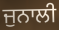
ਜੁਨਾਲੀ